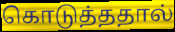
கொடுத்ததால்